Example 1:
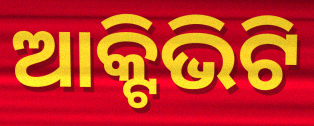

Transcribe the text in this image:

ଆକ୍ଟିଭିଟି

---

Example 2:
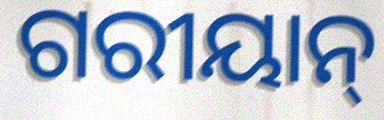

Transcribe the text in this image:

ଗରୀୟାନ୍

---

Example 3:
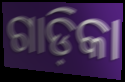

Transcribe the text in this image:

ଗାଡ଼ିକା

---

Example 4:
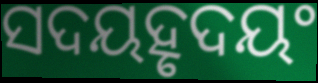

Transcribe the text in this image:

ସଦୟହୃଦୟଂ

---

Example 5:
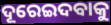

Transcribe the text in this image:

ଦୂରେଇଦବାକୁ